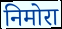
निमोरा